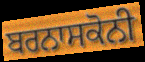
ਬਰਨਾਸਕੋਨੀ